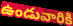
ఉండువారికి